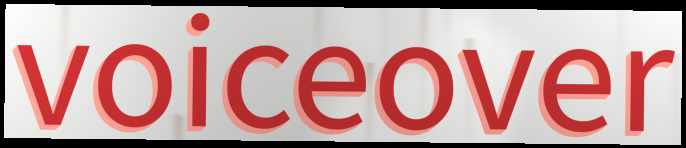
voiceover